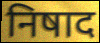
निषाद